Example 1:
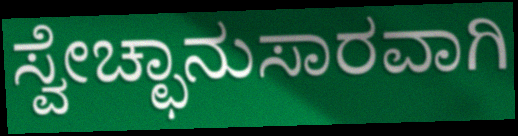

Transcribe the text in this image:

ಸ್ವೇಚ್ಛಾನುಸಾರವಾಗಿ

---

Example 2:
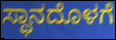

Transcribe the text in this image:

ಸ್ಥಾನದೊಳಗೆ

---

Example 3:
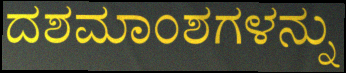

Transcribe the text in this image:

ದಶಮಾಂಶಗಳನ್ನು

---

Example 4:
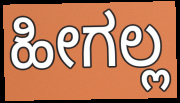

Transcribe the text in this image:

ಹೀಗಲ್ಲ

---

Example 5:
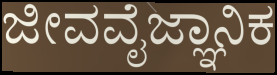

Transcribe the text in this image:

ಜೀವವೈಜ್ಞಾನಿಕ